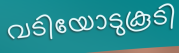
വടിയോടുകൂടി